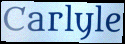
Carlyle